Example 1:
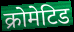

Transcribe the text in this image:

क्रोमेटिड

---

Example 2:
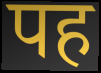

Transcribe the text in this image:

पह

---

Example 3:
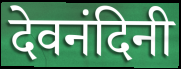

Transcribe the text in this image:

देवनंदिनी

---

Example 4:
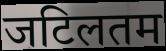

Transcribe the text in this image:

जटिलतम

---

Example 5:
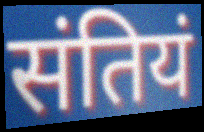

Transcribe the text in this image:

संतियं